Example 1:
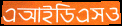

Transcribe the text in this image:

এআইডিএসও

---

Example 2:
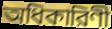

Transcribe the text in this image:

অধিকারিণী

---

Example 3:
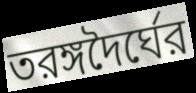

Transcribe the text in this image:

তরঙ্গদৈর্ঘের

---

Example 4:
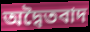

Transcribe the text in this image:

অদ্বৈতবাদ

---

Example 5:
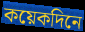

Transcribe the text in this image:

কয়েকদিনে